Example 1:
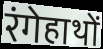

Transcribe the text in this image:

रंगेहाथों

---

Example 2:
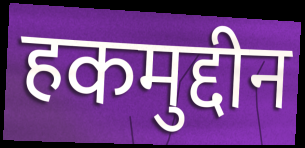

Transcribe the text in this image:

हकमुद्दीन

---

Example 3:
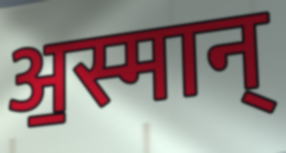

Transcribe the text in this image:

अ॒स्मान्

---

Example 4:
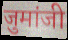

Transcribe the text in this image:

जुमांजी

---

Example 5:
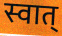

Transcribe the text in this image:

स्वात्